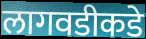
लागवडीकडे